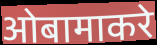
ओबामाकरे